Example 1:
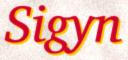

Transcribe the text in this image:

Sigyn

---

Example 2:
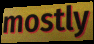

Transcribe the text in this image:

mostly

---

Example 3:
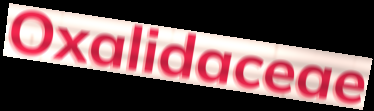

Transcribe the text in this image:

Oxalidaceae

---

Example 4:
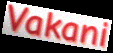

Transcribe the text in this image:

Vakani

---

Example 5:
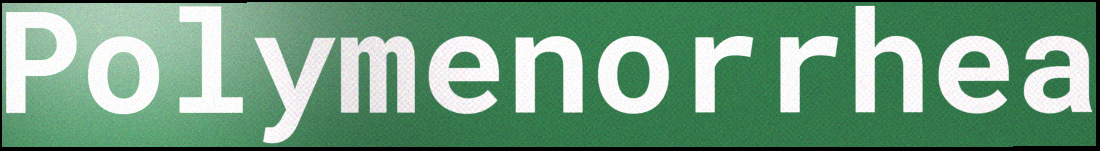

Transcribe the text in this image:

Polymenorrhea